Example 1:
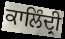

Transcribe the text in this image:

ਕਾਲਿੰਦ੍ਰੀ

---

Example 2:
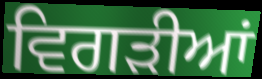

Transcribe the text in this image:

ਵਿਗੜੀਆਂ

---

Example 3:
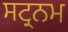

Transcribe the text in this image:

ਸਟ੍ਰਨਮ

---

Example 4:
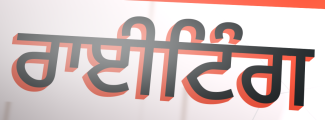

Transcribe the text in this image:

ਰਾਈਟਿੰਗ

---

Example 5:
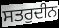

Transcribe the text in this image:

ਸਤਰੁਦੀਨ